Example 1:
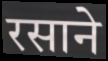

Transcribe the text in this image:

रसाने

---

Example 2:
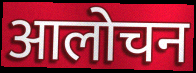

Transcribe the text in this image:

आलोचन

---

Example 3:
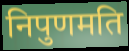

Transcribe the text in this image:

निपुणमति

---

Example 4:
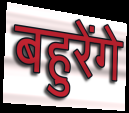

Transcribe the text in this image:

बहुरेंगे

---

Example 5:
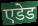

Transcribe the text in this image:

एडेड